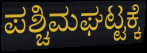
ಪಶ್ಚಿಮಘಟ್ಟಕ್ಕೆ